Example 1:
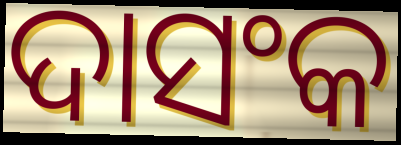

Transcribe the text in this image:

ଦାସଂକ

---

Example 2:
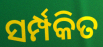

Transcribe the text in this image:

ସର୍ମ୍ପକିତ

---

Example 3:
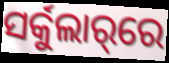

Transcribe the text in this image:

ସର୍କୁଲାର୍‌ରେ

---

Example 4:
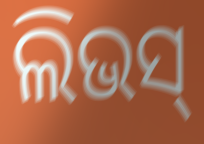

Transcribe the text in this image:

ଲିଭସ୍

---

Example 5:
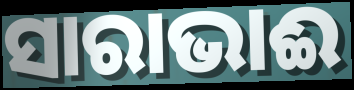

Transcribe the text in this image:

ସାରାଭାଈ